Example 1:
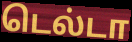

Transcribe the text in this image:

டெல்டா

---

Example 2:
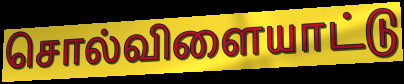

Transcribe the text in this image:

சொல்விளையாட்டு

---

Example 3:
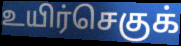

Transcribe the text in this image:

உயிர்செகுக்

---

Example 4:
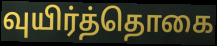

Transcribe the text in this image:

வுயிர்த்தொகை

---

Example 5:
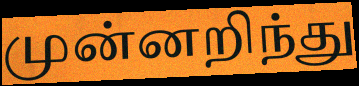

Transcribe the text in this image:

முன்னறிந்து